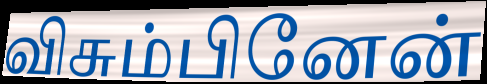
விசும்பினேன்